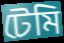
টেমি